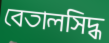
বেতালসিদ্ধ